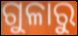
ଗୁଳାରୁ